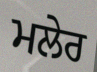
ਮਲੇਰ